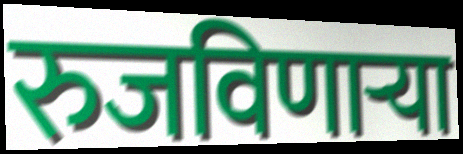
रुजविणाऱ्या